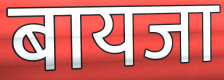
बायजा